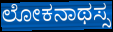
ಲೋಕನಾಥಸ್ಸ